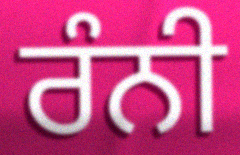
ਰੰਨੀ